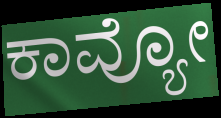
ಕಾವ್ಯೋ